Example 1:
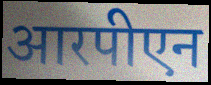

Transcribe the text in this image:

आरपीएन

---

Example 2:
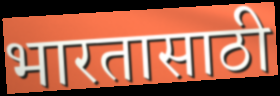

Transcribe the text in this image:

भारतासाठी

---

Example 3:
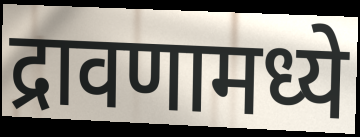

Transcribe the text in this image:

द्रावणामध्ये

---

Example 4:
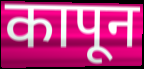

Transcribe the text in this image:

कापून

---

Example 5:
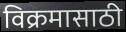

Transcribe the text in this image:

विक्रमासाठी